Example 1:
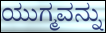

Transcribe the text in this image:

ಯುಗ್ಮವನ್ನು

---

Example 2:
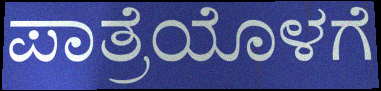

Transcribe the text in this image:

ಪಾತ್ರೆಯೊಳಗೆ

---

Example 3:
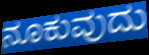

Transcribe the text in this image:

ನೂಕುವುದು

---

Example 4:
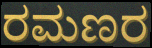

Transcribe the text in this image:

ರಮಣರ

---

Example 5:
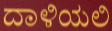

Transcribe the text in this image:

ದಾಳಿಯಲಿ